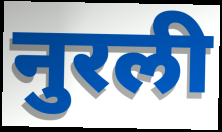
नुरली